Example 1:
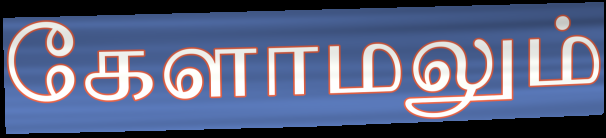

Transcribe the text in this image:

கேளாமலும்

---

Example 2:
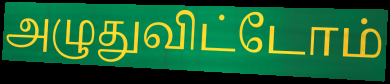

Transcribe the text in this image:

அழுதுவிட்டோம்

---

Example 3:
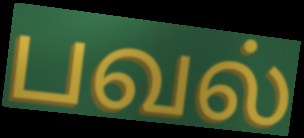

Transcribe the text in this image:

பவல்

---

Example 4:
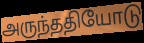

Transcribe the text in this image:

அருந்ததியோடு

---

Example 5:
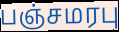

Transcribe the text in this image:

பஞ்சமரபு